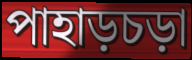
পাহাড়চড়া